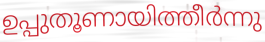
ഉപ്പുതൂണായിത്തീർന്നു